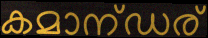
കമാന്ഡര്